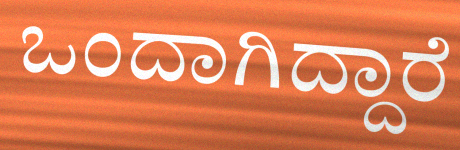
ಒಂದಾಗಿದ್ದಾರೆ